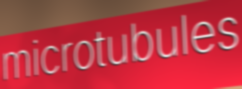
microtubules